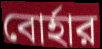
বোর্হার